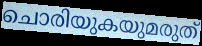
ചൊരിയുകയുമരുത്